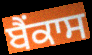
ਬੈਂਕਾਸ